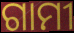
ଗାମୀ